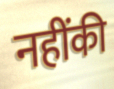
नहींकी